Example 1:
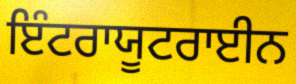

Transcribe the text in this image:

ਇੰਟਰਾਯੂਟਰਾਈਨ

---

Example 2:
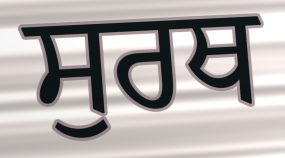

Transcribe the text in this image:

ਸੁਰਥ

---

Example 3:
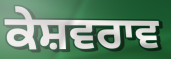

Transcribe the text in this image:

ਕੇਸ਼ਵਰਾਵ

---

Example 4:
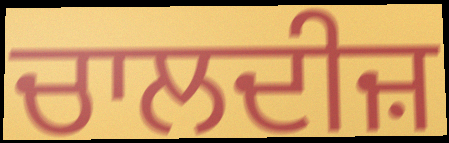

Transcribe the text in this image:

ਚਾਲਦੀਜ਼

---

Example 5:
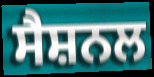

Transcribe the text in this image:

ਸੈਸ਼ਨਲ